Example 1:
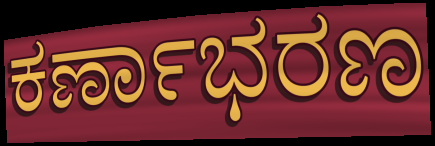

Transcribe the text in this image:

ಕರ್ಣಾಭರಣ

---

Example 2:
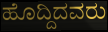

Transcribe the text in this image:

ಹೊದ್ದಿದವರು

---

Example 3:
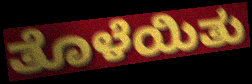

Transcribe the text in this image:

ತೊಳೆಯಿತು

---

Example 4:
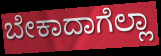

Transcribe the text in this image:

ಬೇಕಾದಾಗೆಲ್ಲಾ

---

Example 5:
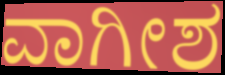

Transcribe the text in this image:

ವಾಗೀಶ